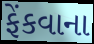
ફેંકવાના